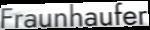
Fraunhaufer